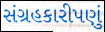
સંગ્રહકારીપણું